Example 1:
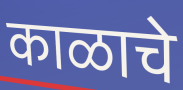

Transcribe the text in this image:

काळाचे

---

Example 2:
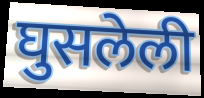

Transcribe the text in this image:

घुसलेली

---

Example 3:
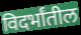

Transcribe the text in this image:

विदर्भांतील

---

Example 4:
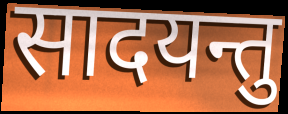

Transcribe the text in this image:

सादयन्तु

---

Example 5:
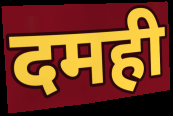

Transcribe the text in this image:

दमही